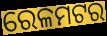
ରେଳମଟର